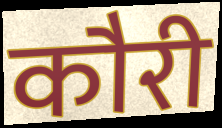
कौरी